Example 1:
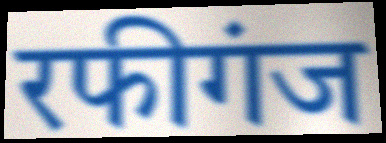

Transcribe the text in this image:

रफीगंज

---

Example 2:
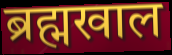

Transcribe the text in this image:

ब्रह्मखाल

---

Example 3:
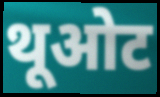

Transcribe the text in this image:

थूओट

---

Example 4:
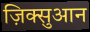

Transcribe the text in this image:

ज़िक्सुआन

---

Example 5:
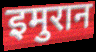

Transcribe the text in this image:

इमुरान